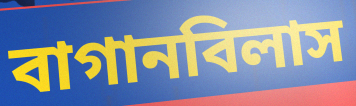
বাগানবিলাস